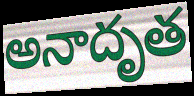
అనాదృత